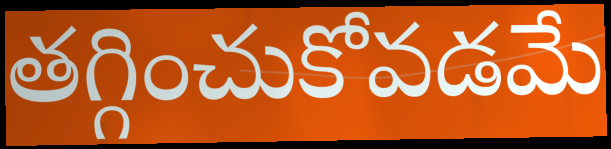
తగ్గించుకోవడమే